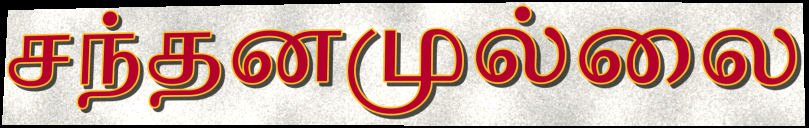
சந்தனமுல்லை